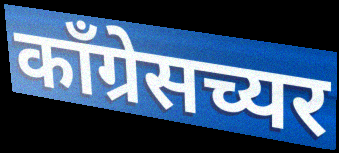
काँग्रेसच्यर